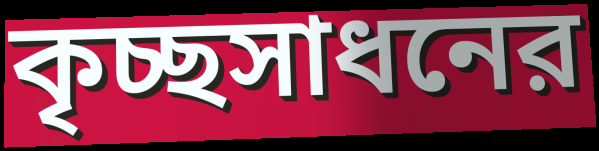
কৃচ্ছসাধনের